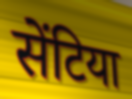
सेंटिया